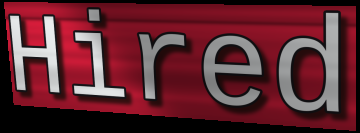
Hired